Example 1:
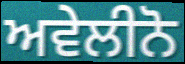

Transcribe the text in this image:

ਅਵੇਲੀਨੋ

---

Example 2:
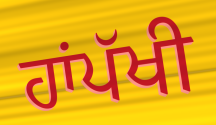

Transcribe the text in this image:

ਹਾਂਪੱਖੀ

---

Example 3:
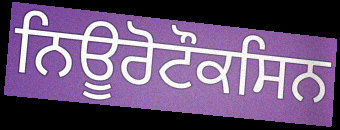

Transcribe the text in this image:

ਨਿਊਰੋਟੌਕਸਿਨ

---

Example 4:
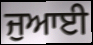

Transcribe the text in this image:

ਜੁਆਈ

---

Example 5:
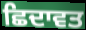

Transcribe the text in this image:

ਛਿਦਾਵਤ